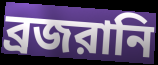
ব্রজরানি